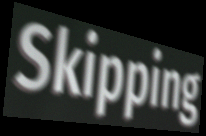
Skipping